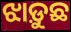
ଝାଡ଼ୁଛ